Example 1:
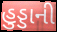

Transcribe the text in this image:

હુડ્ડાની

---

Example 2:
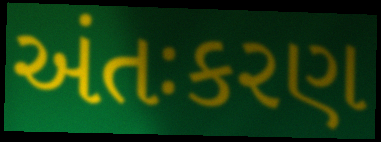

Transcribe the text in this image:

અંતઃકરણ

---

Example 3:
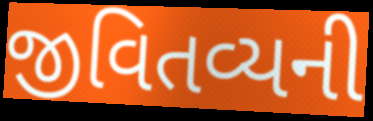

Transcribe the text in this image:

જીવિતવ્યની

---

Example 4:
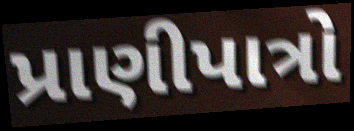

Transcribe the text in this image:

પ્રાણીપાત્રો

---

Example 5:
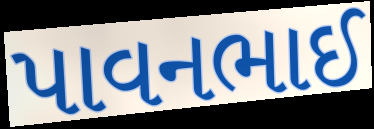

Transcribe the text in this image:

પાવનભાઈ